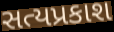
સત્યપ્રકાશ